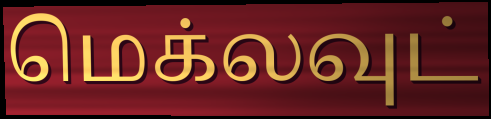
மெக்லவுட்